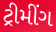
ટ્રીમીંગ